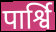
पार्श्वि